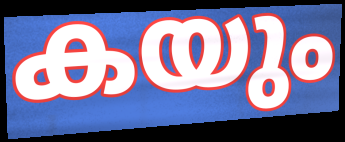
കയും